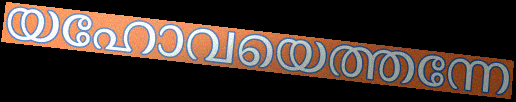
യഹോവയെത്തന്നേ